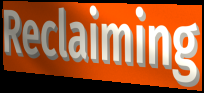
Reclaiming